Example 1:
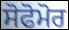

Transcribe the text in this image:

ਸੋਫੋਮੋਰ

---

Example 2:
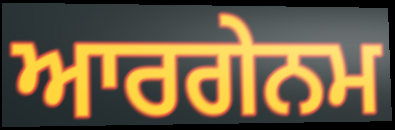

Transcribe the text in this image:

ਆਰਗੇਨਮ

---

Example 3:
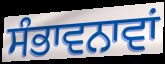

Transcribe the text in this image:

ਸੰਭਾਵਨਾਵਾਂ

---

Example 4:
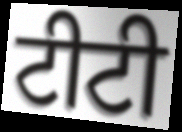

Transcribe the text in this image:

ਟੀਟੀ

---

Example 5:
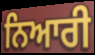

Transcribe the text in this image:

ਨਿਆਰੀ